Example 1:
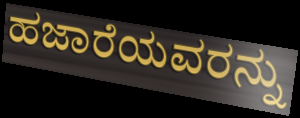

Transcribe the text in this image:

ಹಜಾರೆಯವರನ್ನು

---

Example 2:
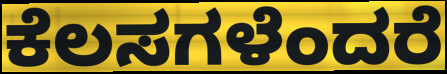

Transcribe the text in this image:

ಕೆಲಸಗಳೆಂದರೆ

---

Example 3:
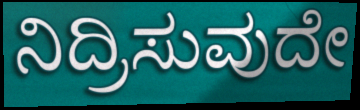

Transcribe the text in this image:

ನಿದ್ರಿಸುವುದೇ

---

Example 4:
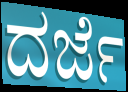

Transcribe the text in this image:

ದರ್ಜೆ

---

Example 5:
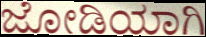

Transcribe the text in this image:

ಜೋಡಿಯಾಗಿ